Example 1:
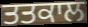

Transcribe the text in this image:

ਤਤਕਾਲ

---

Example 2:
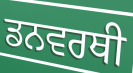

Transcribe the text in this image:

ਡਨਵਰਥੀ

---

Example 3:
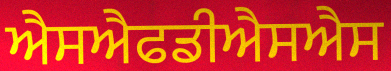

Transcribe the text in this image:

ਐਸਐਫਡੀਐਸਐਸ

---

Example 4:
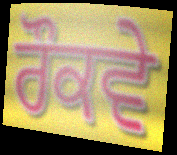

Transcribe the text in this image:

ਰੌਕਵੇ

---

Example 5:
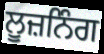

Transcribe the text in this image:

ਲੂਜ਼ਨਿੰਗ